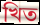
খিত